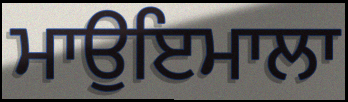
ਮਾਉਇਮਾਲਾ